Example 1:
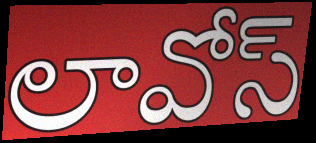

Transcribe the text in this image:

లావోస్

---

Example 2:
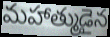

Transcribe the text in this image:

మహాత్ముడైన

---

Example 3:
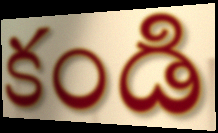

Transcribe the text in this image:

కండి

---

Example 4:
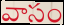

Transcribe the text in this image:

వాసం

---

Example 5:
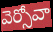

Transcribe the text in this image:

వెర్సోవా